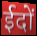
ईदों